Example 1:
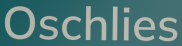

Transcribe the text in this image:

Oschlies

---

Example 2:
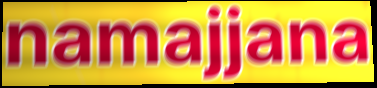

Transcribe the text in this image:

namajjana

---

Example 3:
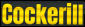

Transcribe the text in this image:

Cockerill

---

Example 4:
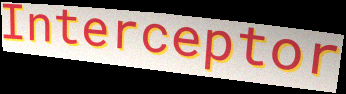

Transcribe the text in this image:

Interceptor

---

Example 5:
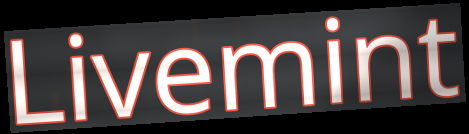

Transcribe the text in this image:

Livemint